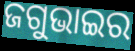
ଜଗୁଭାଇର